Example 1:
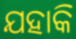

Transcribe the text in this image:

ଯହାକି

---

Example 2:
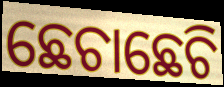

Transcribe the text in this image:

ଛେଚାଛେଚି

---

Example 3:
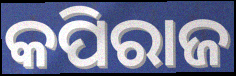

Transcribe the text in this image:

କପିରାଜ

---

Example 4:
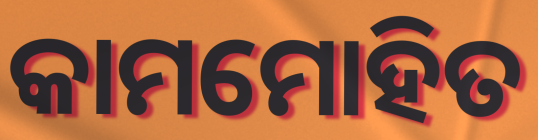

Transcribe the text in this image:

କାମମୋହିତ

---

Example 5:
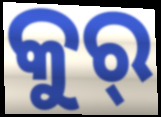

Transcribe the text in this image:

କୁର୍